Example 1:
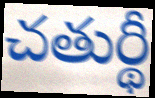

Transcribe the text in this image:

చతుర్థీ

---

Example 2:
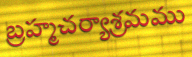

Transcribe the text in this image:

బ్రహ్మచర్యాశ్రమము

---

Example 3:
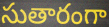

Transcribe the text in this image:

సుతారంగా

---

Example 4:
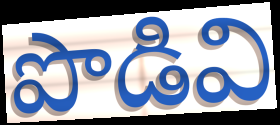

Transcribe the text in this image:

పొడివి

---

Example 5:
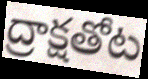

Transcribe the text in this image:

ద్రాక్షతోట